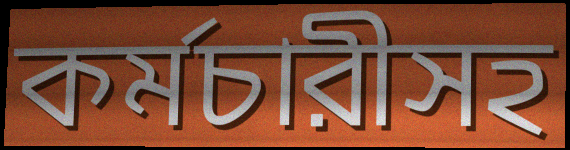
কর্মচারীসহ